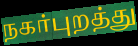
நகர்புறத்து